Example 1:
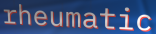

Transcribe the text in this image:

rheumatic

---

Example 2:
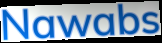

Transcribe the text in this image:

Nawabs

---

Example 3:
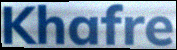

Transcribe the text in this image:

Khafre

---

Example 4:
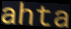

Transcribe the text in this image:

ahta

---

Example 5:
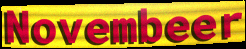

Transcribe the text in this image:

Novembeer